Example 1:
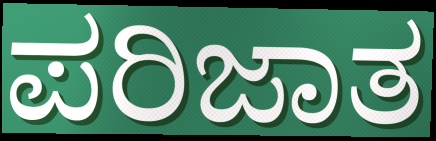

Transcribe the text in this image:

ಪರಿಜಾತ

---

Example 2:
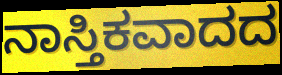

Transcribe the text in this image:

ನಾಸ್ತಿಕವಾದದ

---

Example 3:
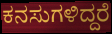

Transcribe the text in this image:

ಕನಸುಗಳಿದ್ದರೆ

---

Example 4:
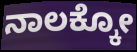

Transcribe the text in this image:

ನಾಲಕ್ಕೋ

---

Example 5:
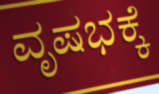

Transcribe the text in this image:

ವೃಷಭಕ್ಕೆ